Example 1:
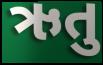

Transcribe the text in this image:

ઋતુ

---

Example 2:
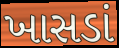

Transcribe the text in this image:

ખાસડાં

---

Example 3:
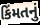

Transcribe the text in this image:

કિંમતનું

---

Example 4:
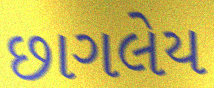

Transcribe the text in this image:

છાગલેય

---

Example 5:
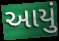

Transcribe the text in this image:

આયું